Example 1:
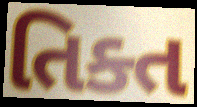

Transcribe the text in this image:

તિક્ત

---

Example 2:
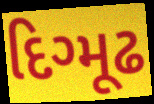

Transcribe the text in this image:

દિગ્મૂઢ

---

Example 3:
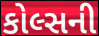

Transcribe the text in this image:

કોલ્સની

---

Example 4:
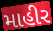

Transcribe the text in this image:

માહીર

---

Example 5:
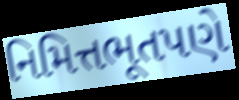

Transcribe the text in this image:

નિમિત્તભૂતપણે